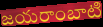
జయరాంబాటి